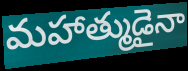
మహాత్ముడైనా